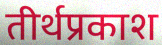
तीर्थप्रकाश